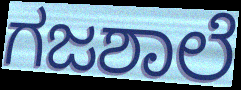
ಗಜಶಾಲೆ